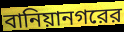
বানিয়ানগরের